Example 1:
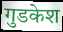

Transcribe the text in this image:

गुडकेश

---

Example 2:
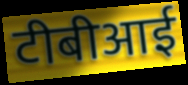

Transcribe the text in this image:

टीबीआई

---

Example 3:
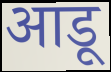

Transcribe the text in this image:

आडू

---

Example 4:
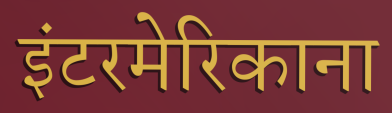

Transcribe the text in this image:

इंटरमेरिकाना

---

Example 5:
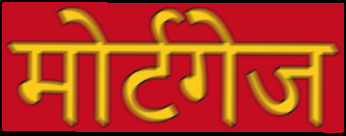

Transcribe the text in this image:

मोर्टगेज